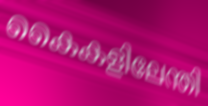
കൈകളിലേന്തി